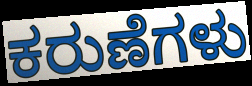
ಕರುಣೆಗಳು